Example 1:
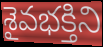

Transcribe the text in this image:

శైవభక్తిని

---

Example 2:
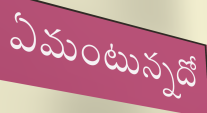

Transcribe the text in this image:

ఏమంటున్నదో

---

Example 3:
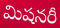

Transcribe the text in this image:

మిషనరీ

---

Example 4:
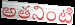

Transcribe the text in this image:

అతనింటి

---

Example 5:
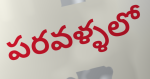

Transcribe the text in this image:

పరవళ్ళలో